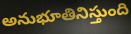
అనుభూతినిస్తుంది